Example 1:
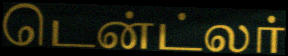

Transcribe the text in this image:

டென்ட்லர்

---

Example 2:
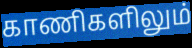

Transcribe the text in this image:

காணிகளிலும்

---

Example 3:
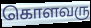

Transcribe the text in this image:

கொளவரு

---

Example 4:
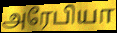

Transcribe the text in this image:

அரேபியா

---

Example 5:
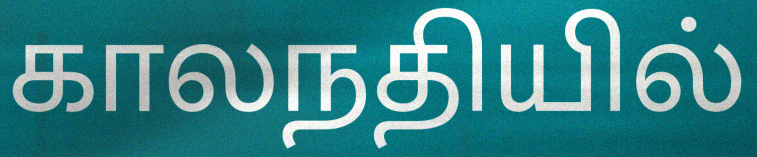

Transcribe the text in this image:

காலநதியில்